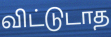
விட்டுடாத